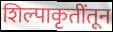
शिल्पाकृतींतून